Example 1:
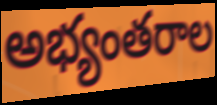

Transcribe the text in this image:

అభ్యంతరాల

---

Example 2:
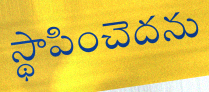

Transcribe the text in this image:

స్థాపించెదను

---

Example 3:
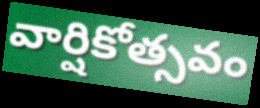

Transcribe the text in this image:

వార్షికోత్సవం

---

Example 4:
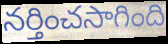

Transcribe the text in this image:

నర్తించసాగింది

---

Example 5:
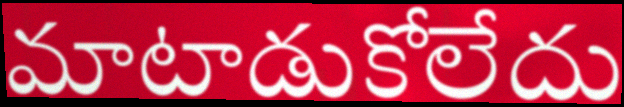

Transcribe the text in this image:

మాటాడుకోలేదు